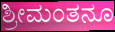
ಶ್ರೀಮಂತನೂ